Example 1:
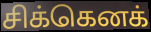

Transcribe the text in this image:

சிக்கெனக்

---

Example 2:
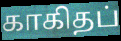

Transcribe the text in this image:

காகிதப்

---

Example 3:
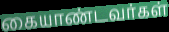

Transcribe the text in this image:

கையாண்டவர்கள்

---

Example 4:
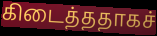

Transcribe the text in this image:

கிடைத்ததாகச்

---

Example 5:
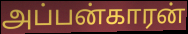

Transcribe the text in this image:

அப்பன்காரன்